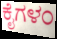
ಕೈಗಳಂ